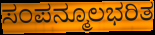
ಸಂಪನ್ಮೂಲಭರಿತ